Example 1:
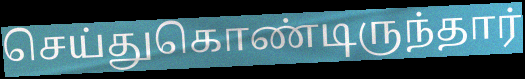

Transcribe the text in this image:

செய்துகொண்டிருந்தார்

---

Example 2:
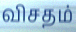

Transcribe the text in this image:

விசதம்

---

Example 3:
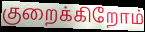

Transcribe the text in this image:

குறைக்கிறோம்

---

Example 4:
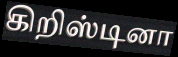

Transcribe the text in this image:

கிறிஸ்டினா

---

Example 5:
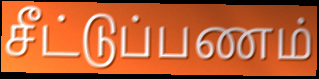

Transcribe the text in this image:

சீட்டுப்பணம்